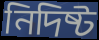
নিদিষ্ট